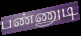
பண்ணுடி